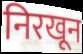
निरखून